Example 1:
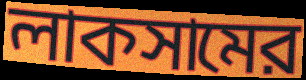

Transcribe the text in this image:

লাকসামের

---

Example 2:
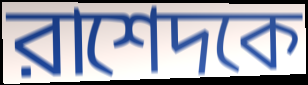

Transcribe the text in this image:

রাশেদকে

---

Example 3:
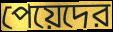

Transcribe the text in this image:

পেয়েদের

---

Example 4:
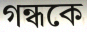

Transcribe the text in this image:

গন্ধকে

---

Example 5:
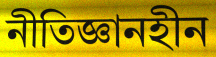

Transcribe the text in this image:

নীতিজ্ঞানহীন